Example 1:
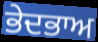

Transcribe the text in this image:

ਭੇਦਭਾਅ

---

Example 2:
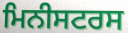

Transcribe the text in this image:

ਮਿਨੀਸਟਰਸ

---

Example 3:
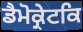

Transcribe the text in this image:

ਡੈਮੋਕ੍ਰੇਟਕਿ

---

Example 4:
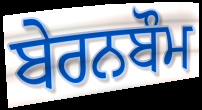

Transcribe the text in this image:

ਬੇਰਨਬੌਮ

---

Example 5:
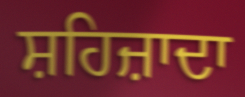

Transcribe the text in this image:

ਸ਼ਹਿਜ਼ਾਦਾ